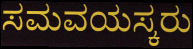
ಸಮವಯಸ್ಕರು